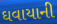
ઘવાયાની